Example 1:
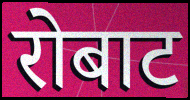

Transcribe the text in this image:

रोबाट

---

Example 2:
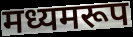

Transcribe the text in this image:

मध्यमरूप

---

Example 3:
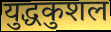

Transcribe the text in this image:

युद्धकुशल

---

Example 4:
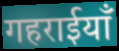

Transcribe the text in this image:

गहराईयाँ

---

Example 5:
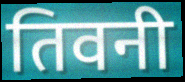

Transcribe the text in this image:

तिवनी